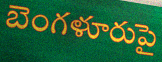
బెంగళూరుపై